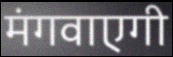
मंगवाएगी